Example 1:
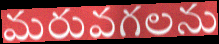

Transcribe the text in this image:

మరువగలను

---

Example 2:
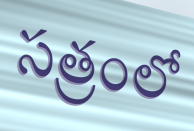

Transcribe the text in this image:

సత్రంలో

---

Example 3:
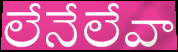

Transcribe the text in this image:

లేనేలేవా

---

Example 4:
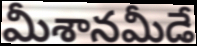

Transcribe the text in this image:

మీశానమీడే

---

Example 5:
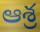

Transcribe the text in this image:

ఆశ్ర